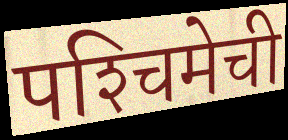
पश्चिमेची